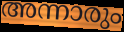
അന്നാരും